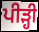
ਪੀੜ੍ਹੀ